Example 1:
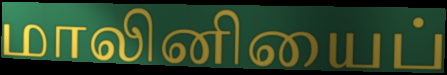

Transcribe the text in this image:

மாலினியைப்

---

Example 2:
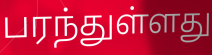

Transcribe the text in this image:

பரந்துள்ளது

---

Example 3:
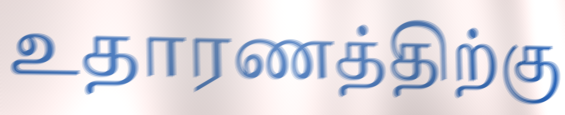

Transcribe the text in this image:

உதாரணத்திற்கு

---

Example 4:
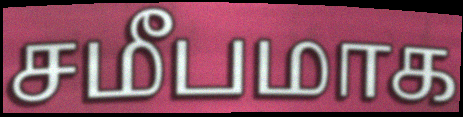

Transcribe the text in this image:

சமீபமாக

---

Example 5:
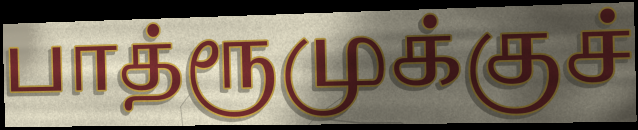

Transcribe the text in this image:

பாத்ரூமுக்குச்